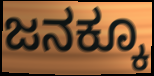
ಜನಕ್ಕೂ